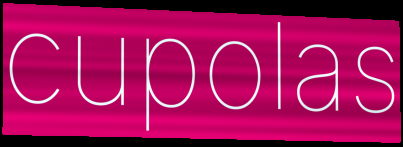
cupolas